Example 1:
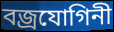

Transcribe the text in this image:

বজ্ৰযোগিনী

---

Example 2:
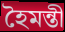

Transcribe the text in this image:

হৈমন্তী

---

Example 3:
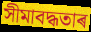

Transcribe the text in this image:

সীমাবদ্ধতাৰ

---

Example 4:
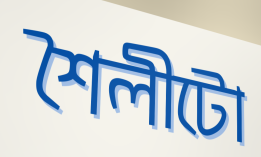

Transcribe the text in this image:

শৈলীটো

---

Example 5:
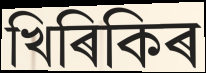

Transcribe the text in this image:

খিৰিকিৰ